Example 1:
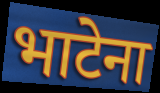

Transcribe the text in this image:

भाटेना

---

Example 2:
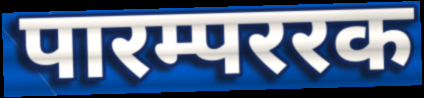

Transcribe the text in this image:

पारम्पररक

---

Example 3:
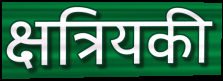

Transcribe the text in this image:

क्षत्रियकी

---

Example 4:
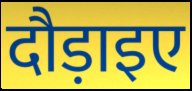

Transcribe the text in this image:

दौड़ाइए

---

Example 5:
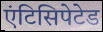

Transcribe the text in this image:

एंटिसिपेटेड